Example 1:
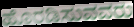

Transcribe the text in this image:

ಹೊರಡಿಸುವವರು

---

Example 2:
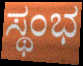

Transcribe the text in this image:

ಸ್ಥಂಭ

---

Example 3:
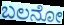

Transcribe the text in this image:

ಬಲನೋ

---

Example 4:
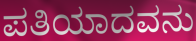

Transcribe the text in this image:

ಪತಿಯಾದವನು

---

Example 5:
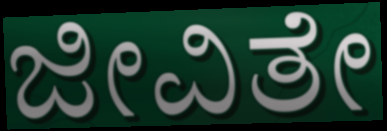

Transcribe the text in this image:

ಜೀವಿತೇ